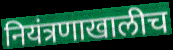
नियंत्रणाखालीच